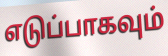
எடுப்பாகவும்